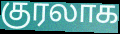
குரலாக